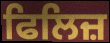
ਫਿਲਿਜ਼